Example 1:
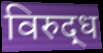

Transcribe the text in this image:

विरुद्ध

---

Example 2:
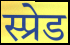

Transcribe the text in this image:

स्प्रेड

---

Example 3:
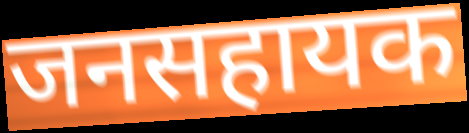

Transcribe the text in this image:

जनसहायक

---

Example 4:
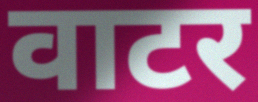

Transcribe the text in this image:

वाटर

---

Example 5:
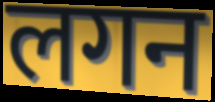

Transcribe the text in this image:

लगन